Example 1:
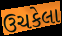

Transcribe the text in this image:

ઉચકેલા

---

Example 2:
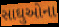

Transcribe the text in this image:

સાઘુઓના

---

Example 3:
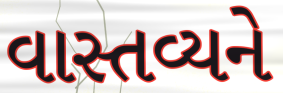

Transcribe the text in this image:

વાસ્તવ્યને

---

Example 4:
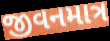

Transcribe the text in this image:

જીવનમાત્ર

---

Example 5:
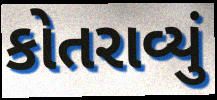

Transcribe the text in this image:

કોતરાવ્યું